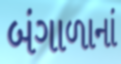
બંગાળાનાં